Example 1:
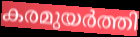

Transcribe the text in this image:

കരമുയർത്തി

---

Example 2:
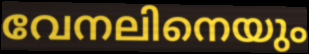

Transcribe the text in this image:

വേനലിനെയും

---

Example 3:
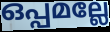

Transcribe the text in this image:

ഒപ്പമല്ലേ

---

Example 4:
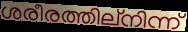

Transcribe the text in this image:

ശരീരത്തില്നിന്ന്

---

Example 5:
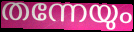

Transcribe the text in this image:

തന്നേയും